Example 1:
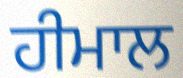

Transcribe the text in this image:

ਹੀਮਾਲ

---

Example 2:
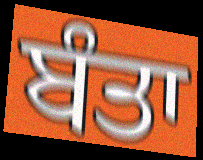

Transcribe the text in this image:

ਬੰਤਾ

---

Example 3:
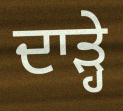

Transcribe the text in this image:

ਦਾੜ੍ਹੇ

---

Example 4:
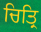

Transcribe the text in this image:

ਚਿਤ੍ਰਿ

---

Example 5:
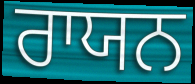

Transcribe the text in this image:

ਰਾਯਨ